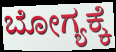
ಬೋಗ್ಯಕ್ಕೆ